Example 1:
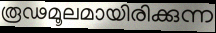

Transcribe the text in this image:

രൂഢമൂലമായിരിക്കുന്ന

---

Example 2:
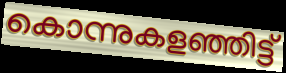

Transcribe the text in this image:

കൊന്നുകളഞ്ഞിട്ട്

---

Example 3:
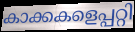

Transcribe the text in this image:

കാക്കകളെപ്പറ്റി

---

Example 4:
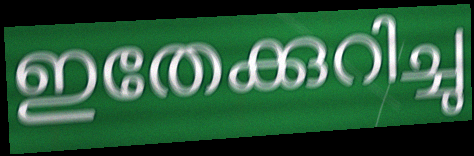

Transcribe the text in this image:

ഇതേക്കുറിച്ചു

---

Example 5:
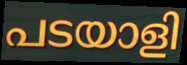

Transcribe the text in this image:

പടയാളി